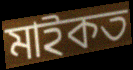
মাইকত